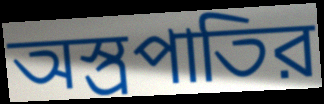
অস্ত্রপাতির